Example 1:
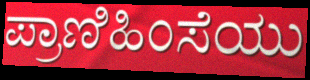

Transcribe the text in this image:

ಪ್ರಾಣಿಹಿಂಸೆಯು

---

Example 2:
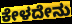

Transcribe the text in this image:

ಕೇಳದೇನು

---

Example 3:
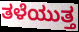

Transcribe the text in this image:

ತಳೆಯುತ್ತ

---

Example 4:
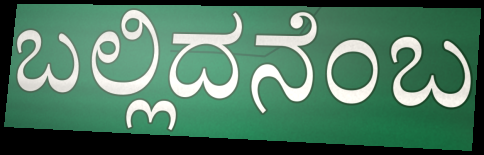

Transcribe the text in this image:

ಬಲ್ಲಿದನೆಂಬ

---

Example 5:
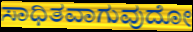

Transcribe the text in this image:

ಸಾಧಿತವಾಗುವುದೋ